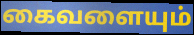
கைவளையும்